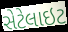
સેટેલાઇટ